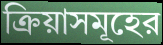
ক্রিয়াসমূহের